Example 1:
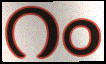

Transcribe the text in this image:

റം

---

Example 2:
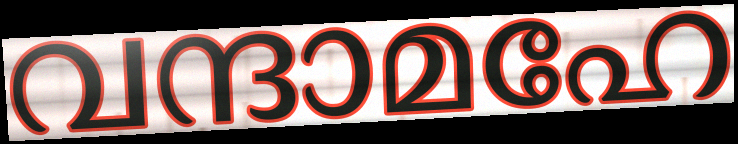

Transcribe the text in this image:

വന്ദാമഹേ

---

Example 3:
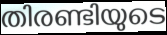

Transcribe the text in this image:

തിരണ്ടിയുടെ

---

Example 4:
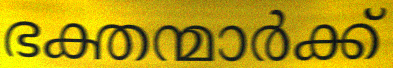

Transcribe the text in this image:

ഭക്തന്മാർക്ക്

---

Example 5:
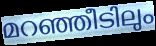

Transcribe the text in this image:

മറഞ്ഞീടിലും